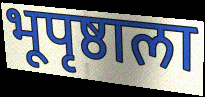
भूपृष्ठाला